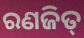
ରଣଜିତ୍